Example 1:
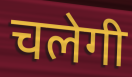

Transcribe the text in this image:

चलेगी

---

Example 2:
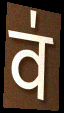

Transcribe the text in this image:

व॑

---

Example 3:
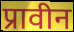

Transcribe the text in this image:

प्रावीन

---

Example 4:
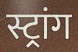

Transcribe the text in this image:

स्ट्रांग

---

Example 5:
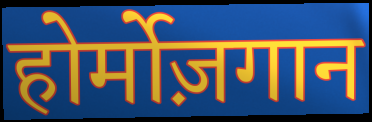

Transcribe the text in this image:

होर्मोज़गान